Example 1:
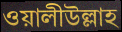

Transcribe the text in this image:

ওয়ালীউল্লাহ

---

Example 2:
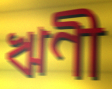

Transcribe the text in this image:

ঋণী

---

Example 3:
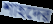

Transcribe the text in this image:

শাহদের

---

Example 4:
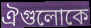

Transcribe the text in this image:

ঐগুলোকে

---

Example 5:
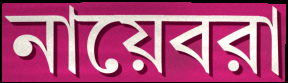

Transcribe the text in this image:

নায়েবরা